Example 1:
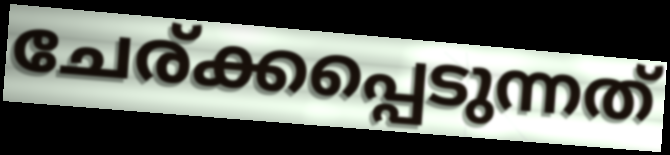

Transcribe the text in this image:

ചേര്ക്കപ്പെടുന്നത്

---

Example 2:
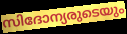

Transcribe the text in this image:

സിദോന്യരുടെയും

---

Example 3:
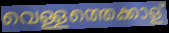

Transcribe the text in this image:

വെള്ളത്തെക്കാള്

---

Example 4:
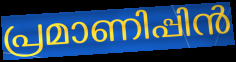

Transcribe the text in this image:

പ്രമാണിപ്പിൻ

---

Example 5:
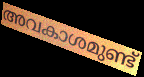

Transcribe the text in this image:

അവകാശമുണ്ട്